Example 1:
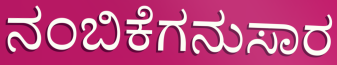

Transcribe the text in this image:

ನಂಬಿಕೆಗನುಸಾರ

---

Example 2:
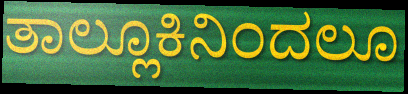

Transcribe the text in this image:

ತಾಲ್ಲೂಕಿನಿಂದಲೂ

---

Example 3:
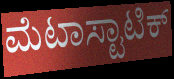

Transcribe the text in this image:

ಮೆಟಾಸ್ಟಾಟಿಕ್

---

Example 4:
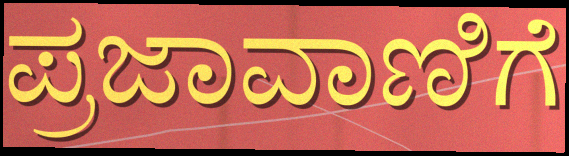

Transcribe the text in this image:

ಪ್ರಜಾವಾಣಿಗೆ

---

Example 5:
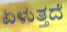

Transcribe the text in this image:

ಏಳುತ್ತದೆ